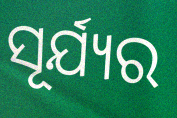
ସୂର୍ଯ୍ୟର